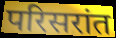
परिसरांत